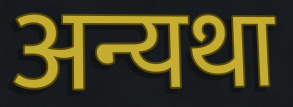
अन्यथा